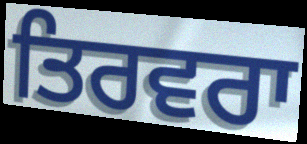
ਤਿਰਵਰਾ